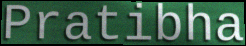
Pratibha